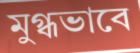
মুগ্ধভাবে